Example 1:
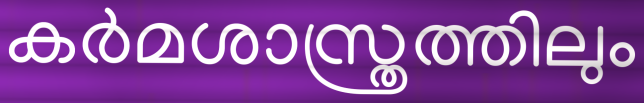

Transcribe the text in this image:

കർമശാസ്ത്രത്തിലും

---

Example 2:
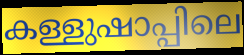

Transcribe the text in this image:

കള്ളുഷാപ്പിലെ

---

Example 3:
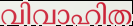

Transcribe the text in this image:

വിവാഹിത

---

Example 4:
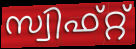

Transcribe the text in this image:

സ്വിഫ്റ്റ്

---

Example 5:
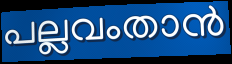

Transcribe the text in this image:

പല്ലവംതാൻ